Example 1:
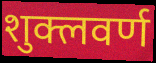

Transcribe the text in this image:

शुक्लवर्ण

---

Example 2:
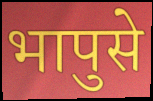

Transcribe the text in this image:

भापुसे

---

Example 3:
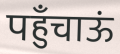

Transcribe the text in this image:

पहुँचाऊं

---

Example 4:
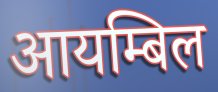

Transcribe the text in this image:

आयम्बिल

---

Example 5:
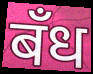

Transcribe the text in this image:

बँध